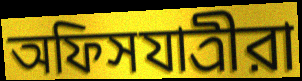
অফিসযাত্রীরা